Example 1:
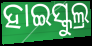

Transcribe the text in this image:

ହାଇସ୍କୁଲ୍ର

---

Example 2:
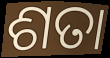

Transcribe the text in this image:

ଶତା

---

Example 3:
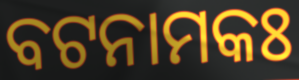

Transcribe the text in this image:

ବଟନାମକଃ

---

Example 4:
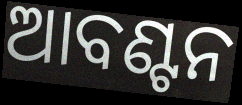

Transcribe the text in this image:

ଆବଣ୍ଟନ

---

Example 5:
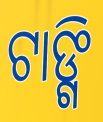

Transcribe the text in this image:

ଟାଙ୍ଗି